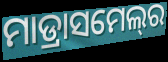
ମାଡ୍ରାସମେଲ୍‍ର